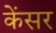
केंसर